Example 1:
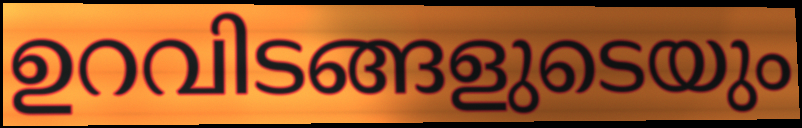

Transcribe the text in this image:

ഉറവിടങ്ങളുടെയും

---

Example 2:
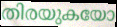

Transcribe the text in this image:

തിരയുകയോ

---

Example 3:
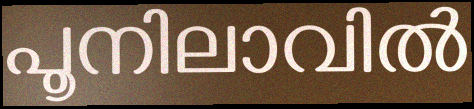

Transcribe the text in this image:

പൂനിലാവിൽ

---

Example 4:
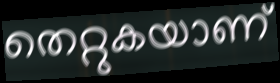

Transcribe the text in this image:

തെറ്റുകയാണ്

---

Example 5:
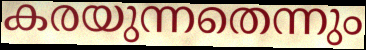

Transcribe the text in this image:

കരയുന്നതെന്നും